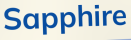
Sapphire